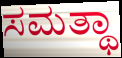
ಸಮತ್ಥಾ